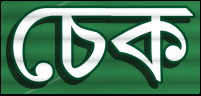
চেক